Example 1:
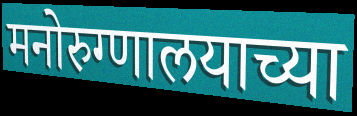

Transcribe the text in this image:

मनोरुग्णालयाच्या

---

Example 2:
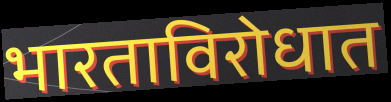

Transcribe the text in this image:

भारताविरोधात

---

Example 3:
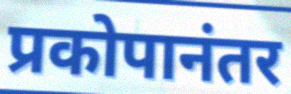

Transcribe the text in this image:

प्रकोपानंतर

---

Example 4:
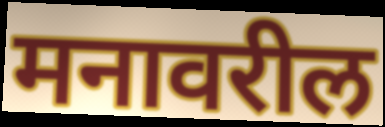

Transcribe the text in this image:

मनावरील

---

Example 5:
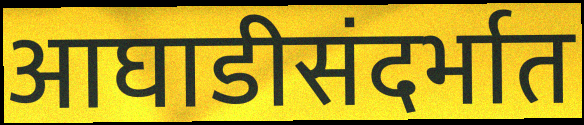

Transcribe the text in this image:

आघाडीसंदर्भात